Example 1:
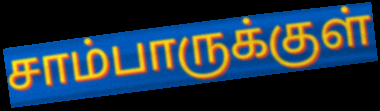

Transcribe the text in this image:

சாம்பாருக்குள்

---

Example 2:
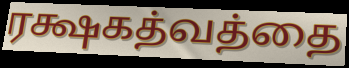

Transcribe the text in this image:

ரக்ஷகத்வத்தை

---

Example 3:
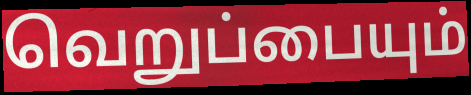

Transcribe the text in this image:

வெறுப்பையும்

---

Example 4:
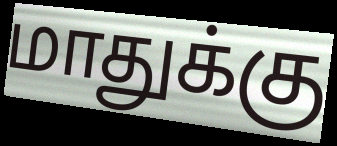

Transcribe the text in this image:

மாதுக்கு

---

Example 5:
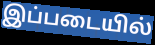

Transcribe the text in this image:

இப்படையில்